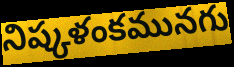
నిష్కళంకమునగు